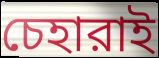
চেহারাই